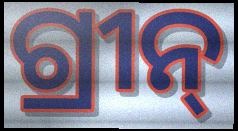
ଗ୍ରୀନ୍